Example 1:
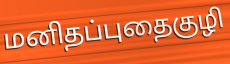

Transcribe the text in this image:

மனிதப்புதைகுழி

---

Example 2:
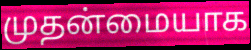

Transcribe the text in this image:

முதன்மையாக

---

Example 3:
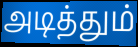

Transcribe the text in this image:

அடித்தும்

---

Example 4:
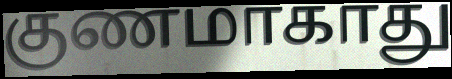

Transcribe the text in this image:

குணமாகாது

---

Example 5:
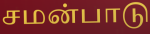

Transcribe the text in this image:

சமன்பாடு